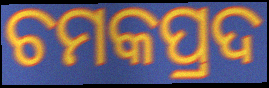
ଚମକପ୍ରଦ